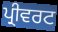
ਪ੍ਰੀਵਰਟ